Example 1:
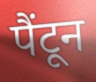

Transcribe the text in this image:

पैंटून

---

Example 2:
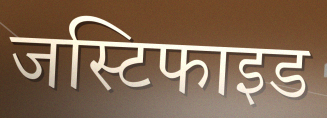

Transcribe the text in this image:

जस्टिफाइड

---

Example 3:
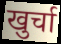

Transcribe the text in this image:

खुर्चा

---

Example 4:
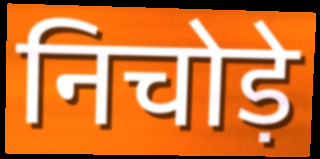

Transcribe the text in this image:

निचोड़े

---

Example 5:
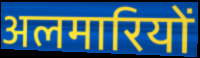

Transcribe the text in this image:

अलमारियों